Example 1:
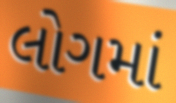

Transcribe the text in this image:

લોગમાં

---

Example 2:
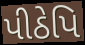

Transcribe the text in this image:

પીઠેપિ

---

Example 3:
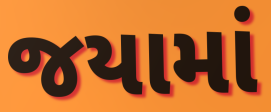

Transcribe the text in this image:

જયામાં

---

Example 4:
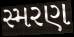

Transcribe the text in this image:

સ્મરણ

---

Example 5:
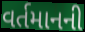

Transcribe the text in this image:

વર્તમાનની